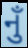
નુઁ